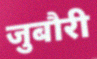
जुबौरी